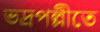
ভদ্রপল্লীতে